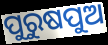
ପୁରୁଷପୁଅ